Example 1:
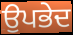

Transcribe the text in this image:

ਉਪਭੇਦ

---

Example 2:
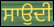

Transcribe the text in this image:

ਸਾਉਦੀ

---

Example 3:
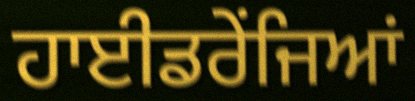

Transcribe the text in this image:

ਹਾਈਡਰੇਂਜਿਆਂ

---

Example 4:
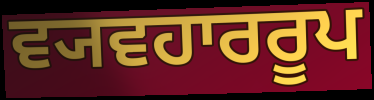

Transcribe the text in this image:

ਵ੍ਯਵਹਾਰਰੂਪ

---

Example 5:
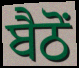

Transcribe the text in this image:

ਬੈਠੋਂ